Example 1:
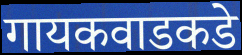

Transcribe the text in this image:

गायकवाडकडे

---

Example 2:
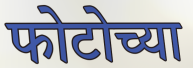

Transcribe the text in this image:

फोटोच्या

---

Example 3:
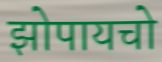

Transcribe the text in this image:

झोपायचो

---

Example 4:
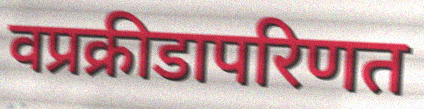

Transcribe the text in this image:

वप्रक्रीडापरिणत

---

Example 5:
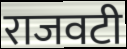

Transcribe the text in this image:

राजवटी